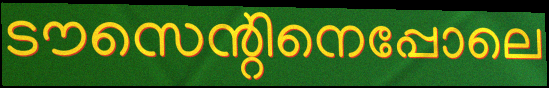
ടൗസെന്റിനെപ്പോലെ